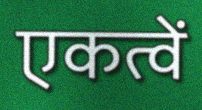
एकत्वें